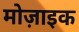
मोज़ाइक